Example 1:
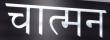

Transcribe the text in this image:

चात्मन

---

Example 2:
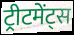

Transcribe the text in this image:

ट्रीटमेंट्स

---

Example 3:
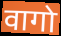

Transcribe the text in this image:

वागो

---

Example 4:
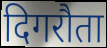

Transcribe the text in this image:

दिगरौता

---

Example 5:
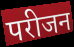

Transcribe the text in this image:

परीजन